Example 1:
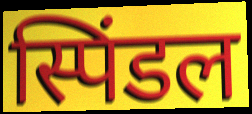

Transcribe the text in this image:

स्पिंडल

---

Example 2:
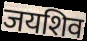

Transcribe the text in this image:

जयशिव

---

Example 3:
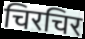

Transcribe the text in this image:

चिरचिर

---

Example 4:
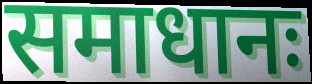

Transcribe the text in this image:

समाधानः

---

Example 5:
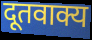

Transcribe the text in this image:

दूतवाक्य